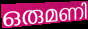
ഒരുമണി